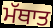
ਮੱਥਾਤ